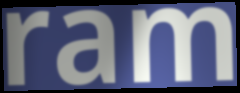
ram